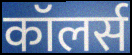
कॉलर्स